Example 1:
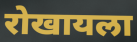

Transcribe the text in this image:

रोखायला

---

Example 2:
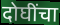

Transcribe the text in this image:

दोघींचा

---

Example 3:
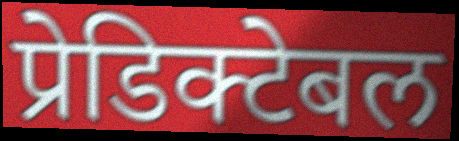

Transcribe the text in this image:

प्रेडिक्टेबल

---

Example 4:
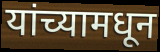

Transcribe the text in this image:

यांच्यामधून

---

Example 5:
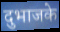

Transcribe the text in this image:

दुभाजके